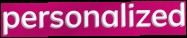
personalized